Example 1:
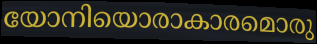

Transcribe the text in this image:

യോനിയൊരാകാരമൊരു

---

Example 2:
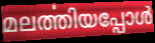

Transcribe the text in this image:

മലൎത്തിയപ്പോൾ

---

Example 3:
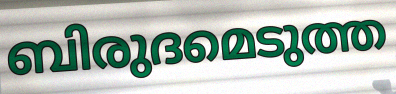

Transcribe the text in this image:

ബിരുദമെടുത്ത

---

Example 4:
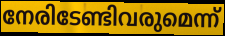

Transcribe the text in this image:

നേരിടേണ്ടിവരുമെന്ന്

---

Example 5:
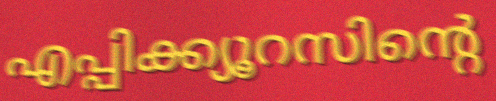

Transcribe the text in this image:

എപ്പിക്ക്യൂറസിന്റെ